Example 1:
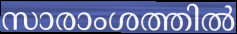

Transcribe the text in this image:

സാരാംശത്തിൽ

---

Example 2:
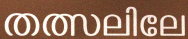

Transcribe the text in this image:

തത്സലിലേ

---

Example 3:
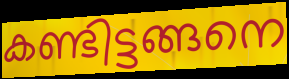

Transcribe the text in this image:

കണ്ടിട്ടങ്ങനെ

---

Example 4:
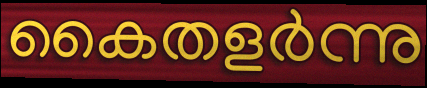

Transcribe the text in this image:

കൈതളർന്നു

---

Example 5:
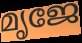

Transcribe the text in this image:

മൃജേ